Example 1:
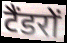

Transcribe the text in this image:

टैंडरों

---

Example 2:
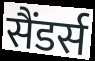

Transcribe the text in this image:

सैंडर्स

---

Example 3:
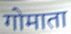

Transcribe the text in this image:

गोमाता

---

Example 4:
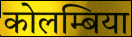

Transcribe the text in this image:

कोलम्बिया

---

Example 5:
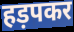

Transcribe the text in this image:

हड़पकर